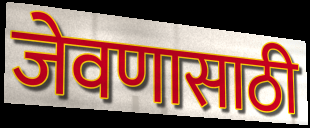
जेवणासाठी